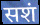
सशं